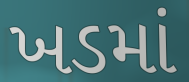
ખડમાં